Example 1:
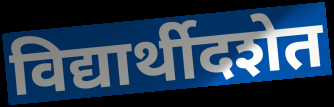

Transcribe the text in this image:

विद्यार्थीदशेत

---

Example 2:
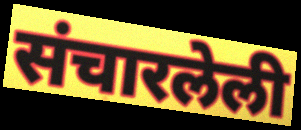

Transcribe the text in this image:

संचारलेली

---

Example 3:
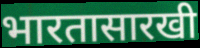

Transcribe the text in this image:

भारतासारखी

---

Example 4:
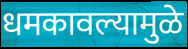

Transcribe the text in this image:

धमकावल्यामुळे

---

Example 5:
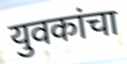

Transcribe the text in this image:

युवकांचा